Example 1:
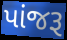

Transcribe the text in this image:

પાંજરૂ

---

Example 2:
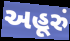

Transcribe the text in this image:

અહૂરું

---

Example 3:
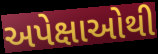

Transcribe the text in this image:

અપેક્ષાઓથી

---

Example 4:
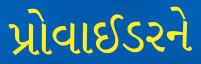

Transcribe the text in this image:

પ્રોવાઈડરને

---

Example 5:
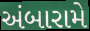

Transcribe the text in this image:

અંબારામે